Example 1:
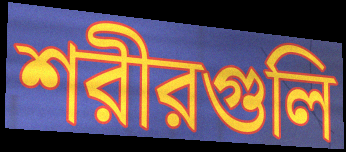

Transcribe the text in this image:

শরীরগুলি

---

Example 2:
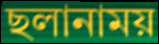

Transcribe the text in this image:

ছলানাময়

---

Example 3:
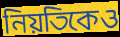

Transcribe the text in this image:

নিয়তিকেও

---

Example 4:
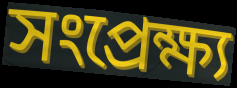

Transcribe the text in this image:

সংপ্রেক্ষ্য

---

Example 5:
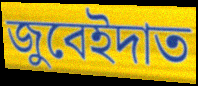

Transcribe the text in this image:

জুবেইদাত